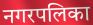
नगरपलिका